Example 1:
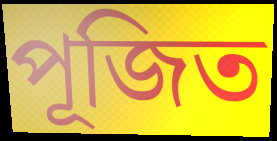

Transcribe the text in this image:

পূজিত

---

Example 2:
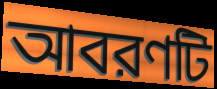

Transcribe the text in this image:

আবরণটি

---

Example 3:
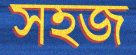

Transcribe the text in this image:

সহজ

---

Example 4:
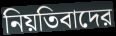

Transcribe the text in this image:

নিয়তিবাদের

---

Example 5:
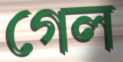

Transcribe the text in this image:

গেল